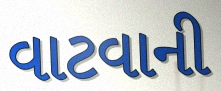
વાટવાની